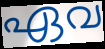
ഏവ